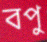
বপু